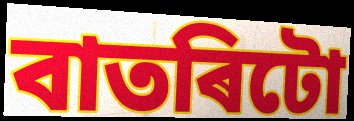
বাতৰিটো